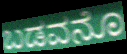
ಬಡವನೊ